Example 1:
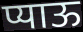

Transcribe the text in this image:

प्याऊ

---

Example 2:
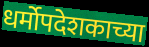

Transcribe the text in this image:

धर्मोपदेशकाच्या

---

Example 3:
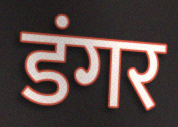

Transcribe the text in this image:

डंगर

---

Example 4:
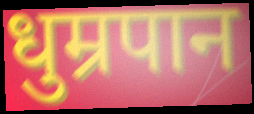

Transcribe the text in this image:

धुम्रपान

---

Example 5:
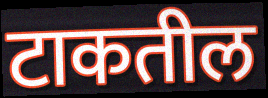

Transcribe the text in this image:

टाकतील